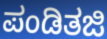
ಪಂಡಿತಜಿ